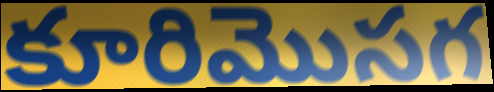
కూరిమొసగ